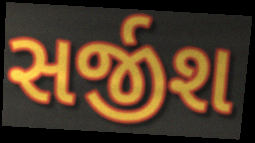
સર્જીશ